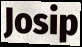
Josip